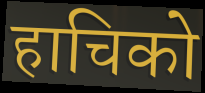
हाचिको